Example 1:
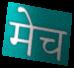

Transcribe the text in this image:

मेच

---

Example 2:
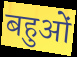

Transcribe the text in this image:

बहुओं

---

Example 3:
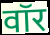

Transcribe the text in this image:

वॉर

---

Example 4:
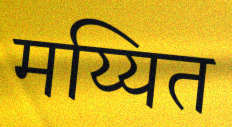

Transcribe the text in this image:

मय्यित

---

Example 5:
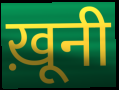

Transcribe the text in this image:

ख़ूनी